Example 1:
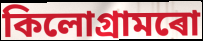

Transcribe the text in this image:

কিলোগ্ৰামৰো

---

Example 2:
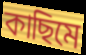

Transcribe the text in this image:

কাছিমে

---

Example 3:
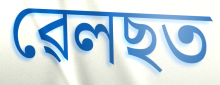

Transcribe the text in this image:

ৱেলছত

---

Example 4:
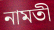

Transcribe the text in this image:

নামতী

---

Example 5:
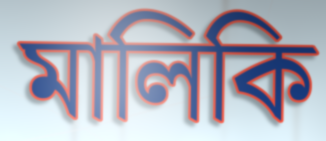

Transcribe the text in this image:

মালিকি